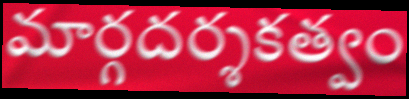
మార్గదర్శకత్వం